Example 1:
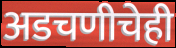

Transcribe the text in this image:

अडचणीचेही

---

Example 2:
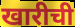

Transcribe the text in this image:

खारीची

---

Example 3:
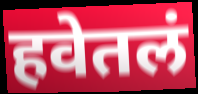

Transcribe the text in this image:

हवेतलं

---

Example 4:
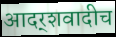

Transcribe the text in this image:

आदर्शवादीच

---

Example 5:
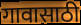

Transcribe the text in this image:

गावासाठी